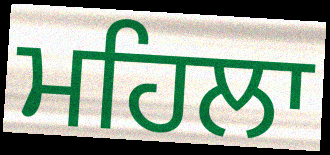
ਮਹਿਲਾ